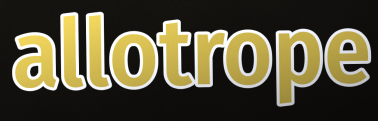
allotrope